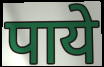
पाये